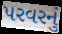
પરવરનું